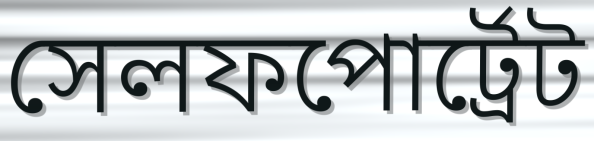
সেলফপোর্ট্রেট